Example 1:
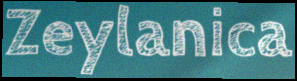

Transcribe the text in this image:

Zeylanica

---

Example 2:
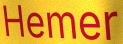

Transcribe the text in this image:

Hemer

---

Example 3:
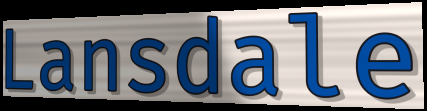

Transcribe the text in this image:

Lansdale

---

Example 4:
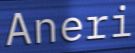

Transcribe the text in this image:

Aneri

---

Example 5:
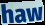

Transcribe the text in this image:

haw